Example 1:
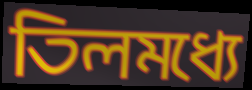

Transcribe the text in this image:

তিলমধ্যে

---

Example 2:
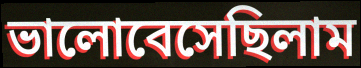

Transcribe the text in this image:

ভালোবেসেছিলাম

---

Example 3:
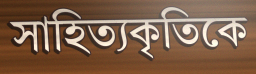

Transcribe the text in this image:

সাহিত্যকৃতিকে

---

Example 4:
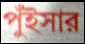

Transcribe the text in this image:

পুঁইসার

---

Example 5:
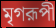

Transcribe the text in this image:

মৃগরূপী